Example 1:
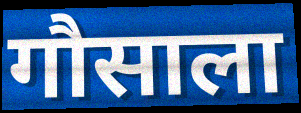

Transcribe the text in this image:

गौसाला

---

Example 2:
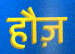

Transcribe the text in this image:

हौज़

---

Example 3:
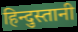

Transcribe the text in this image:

हिन्‍दुस्‍तानी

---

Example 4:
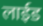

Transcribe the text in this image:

लाईड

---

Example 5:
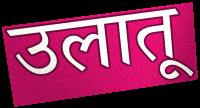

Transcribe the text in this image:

उलातू